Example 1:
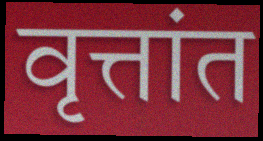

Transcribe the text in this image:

वृत्तांत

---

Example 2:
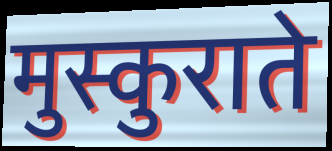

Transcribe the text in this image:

मुस्कुराते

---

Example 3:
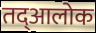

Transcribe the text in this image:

तद्आलोक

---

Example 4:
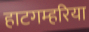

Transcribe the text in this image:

हाटगम्हरिया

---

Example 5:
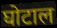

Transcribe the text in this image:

घोटाल